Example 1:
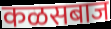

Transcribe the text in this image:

कळसबाज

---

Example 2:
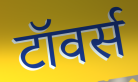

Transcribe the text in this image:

टॉवर्स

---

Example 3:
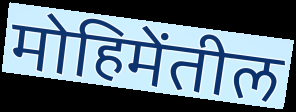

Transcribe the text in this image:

मोहिमेंतील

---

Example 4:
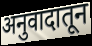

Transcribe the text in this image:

अनुवादातून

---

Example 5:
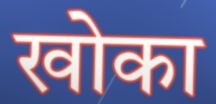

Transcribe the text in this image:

खोका